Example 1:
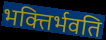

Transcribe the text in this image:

भक्तिर्भवति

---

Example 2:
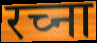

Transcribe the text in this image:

रच्ना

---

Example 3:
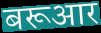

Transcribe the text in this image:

बरूआर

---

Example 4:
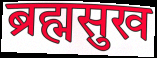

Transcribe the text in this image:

ब्रह्मसुख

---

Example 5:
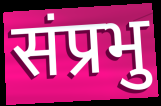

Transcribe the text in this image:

संप्रभु